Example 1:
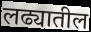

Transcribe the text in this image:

लढ्यातील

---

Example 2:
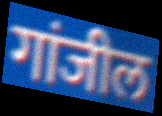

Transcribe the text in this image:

गांजील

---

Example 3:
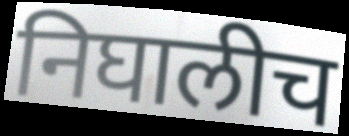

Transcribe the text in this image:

निघालीच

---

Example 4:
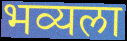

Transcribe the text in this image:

भव्यला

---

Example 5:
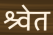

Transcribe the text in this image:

श्र्वेत